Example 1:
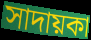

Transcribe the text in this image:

সাদায়কা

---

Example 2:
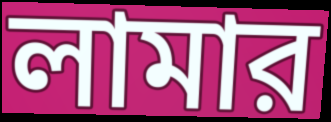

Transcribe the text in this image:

লামার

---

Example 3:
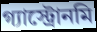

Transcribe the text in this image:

গ্যাস্ট্রোনমি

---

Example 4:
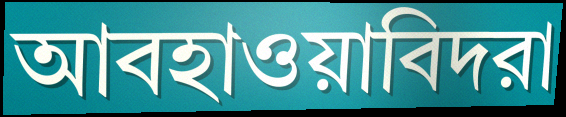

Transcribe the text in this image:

আবহাওয়াবিদরা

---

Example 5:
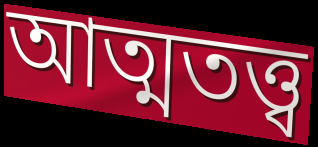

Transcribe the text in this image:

আত্মতত্ত্ব